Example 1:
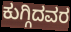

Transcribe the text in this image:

ಕುಗ್ಗಿದವರ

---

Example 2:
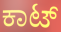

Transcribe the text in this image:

ಕಾಟ್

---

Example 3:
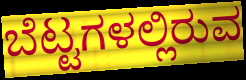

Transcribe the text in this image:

ಬೆಟ್ಟಗಳಲ್ಲಿರುವ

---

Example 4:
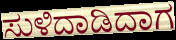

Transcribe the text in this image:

ಸುಳಿದಾಡಿದಾಗ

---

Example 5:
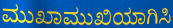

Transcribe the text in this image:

ಮುಖಾಮುಖಿಯಾಗಿಸಿ